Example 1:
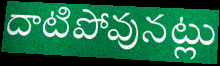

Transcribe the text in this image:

దాటిపోవునట్లు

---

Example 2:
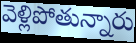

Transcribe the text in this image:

వెళ్లిపోతున్నారు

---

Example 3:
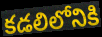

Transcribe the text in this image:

కడలిలోనికి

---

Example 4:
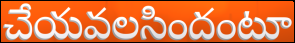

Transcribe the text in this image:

చేయవలసిందంటూ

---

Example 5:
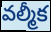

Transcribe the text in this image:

వల్మీక